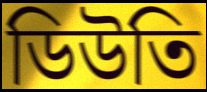
ডিউতি